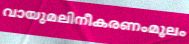
വായുമലിനീകരണംമൂലം